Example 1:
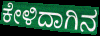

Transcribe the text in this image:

ಕೇಳಿದಾಗಿನ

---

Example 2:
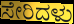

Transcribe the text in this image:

ಸೇರಿದಳು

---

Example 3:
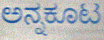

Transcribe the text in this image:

ಅನ್ನಕೂಟ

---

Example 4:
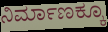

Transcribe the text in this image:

ನಿರ್ಮಾಣಕ್ಕೂ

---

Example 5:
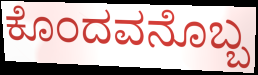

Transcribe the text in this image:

ಕೊಂದವನೊಬ್ಬ